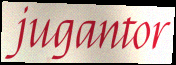
jugantor